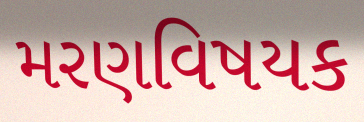
મરણવિષયક